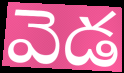
వెడ